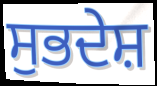
ਸੁਭਦੇਸ਼